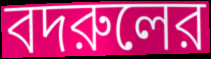
বদরুলের